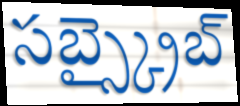
సబ్స్క్రైబ్